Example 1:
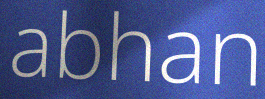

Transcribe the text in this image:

abhan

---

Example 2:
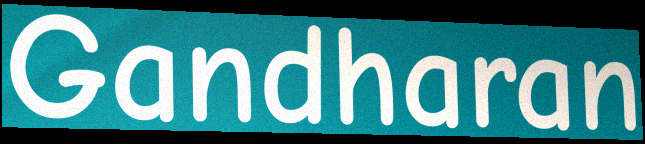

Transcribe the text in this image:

Gandharan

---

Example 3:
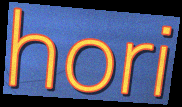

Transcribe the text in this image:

hori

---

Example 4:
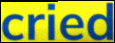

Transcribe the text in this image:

cried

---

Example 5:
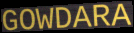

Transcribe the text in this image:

GOWDARA